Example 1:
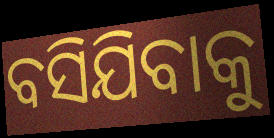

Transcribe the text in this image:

ବସିଯିବାକୁ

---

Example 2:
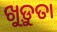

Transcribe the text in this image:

ଖୁଡ଼ୁତା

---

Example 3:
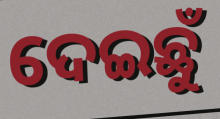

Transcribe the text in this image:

ଦେଇଛୁଁ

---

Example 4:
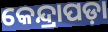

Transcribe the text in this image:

କେନ୍ଦ୍ରାପଡ଼ା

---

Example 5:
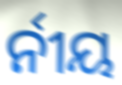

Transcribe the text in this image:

ର୍ନୀୟ